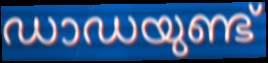
ഡാഡയുണ്ട്